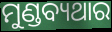
ମୁଣ୍ଡବ୍ୟଥାର